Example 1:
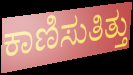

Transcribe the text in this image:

ಕಾಣಿಸುತಿತ್ತು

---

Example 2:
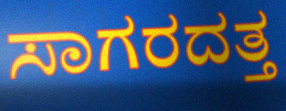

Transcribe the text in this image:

ಸಾಗರದತ್ತ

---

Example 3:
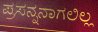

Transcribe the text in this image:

ಪ್ರಸನ್ನನಾಗಲಿಲ್ಲ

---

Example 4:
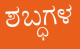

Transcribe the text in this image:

ಶಬ್ಧಗಳ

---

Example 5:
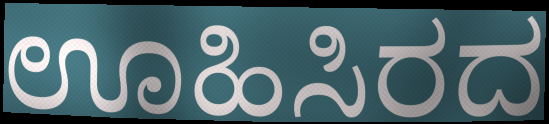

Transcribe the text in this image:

ಊಹಿಸಿರದ